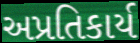
અપ્રતિકાર્ય